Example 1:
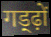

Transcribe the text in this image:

गड्‌ढ़ों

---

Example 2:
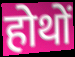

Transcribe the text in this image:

होथों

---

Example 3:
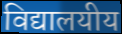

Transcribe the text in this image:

विद्यालयीय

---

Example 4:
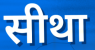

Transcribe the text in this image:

सीथा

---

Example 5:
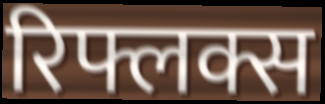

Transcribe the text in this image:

रिफ्लक्स